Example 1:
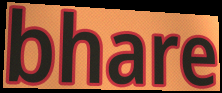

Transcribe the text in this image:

bhare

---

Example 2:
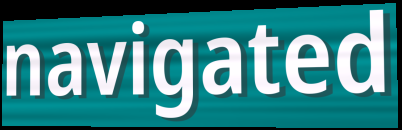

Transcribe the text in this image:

navigated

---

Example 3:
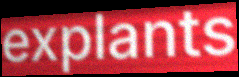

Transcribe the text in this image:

explants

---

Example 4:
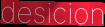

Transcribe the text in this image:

desicion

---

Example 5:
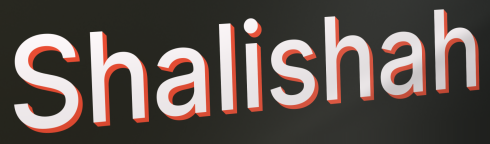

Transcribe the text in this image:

Shalishah